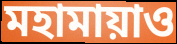
মহামায়াও